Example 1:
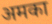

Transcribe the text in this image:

अमका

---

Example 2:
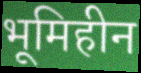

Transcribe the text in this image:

भूमिहीन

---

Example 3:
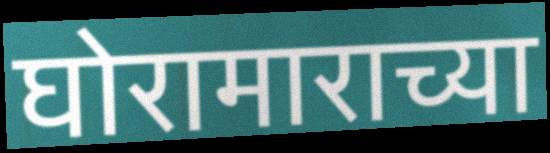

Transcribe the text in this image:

घोरामाराच्या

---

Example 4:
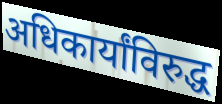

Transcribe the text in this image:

अधिकार्यांविरुद्ध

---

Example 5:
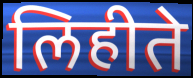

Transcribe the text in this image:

लिहीते